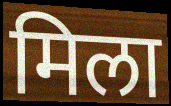
मिला